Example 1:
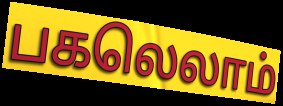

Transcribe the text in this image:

பகலெலாம்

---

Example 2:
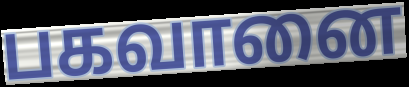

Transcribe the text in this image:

பகவானை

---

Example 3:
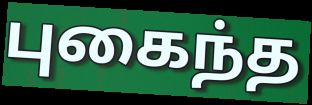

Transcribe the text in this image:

புகைந்த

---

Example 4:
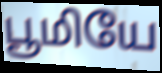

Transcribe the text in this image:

பூமியே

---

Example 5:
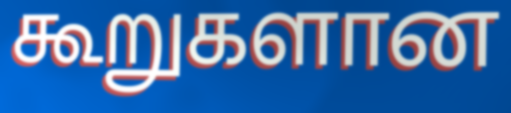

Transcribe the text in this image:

கூறுகளான